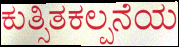
ಕುತ್ಸಿತಕಲ್ಪನೆಯ